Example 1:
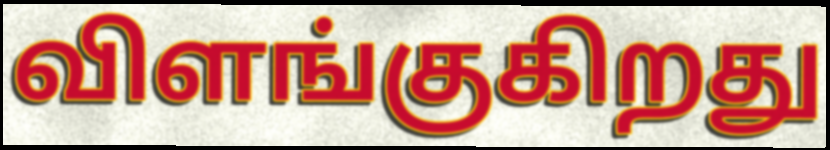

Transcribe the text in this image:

விளங்குகிறது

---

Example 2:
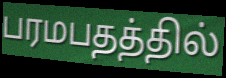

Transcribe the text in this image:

பரமபதத்தில்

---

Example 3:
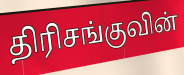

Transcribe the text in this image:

திரிசங்குவின்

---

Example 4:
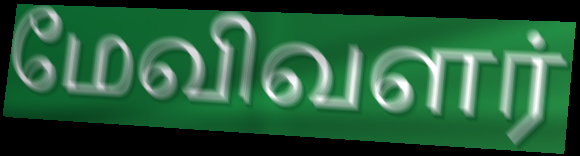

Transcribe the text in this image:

மேவிவளர்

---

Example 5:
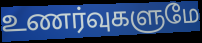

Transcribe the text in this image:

உணர்வுகளுமே